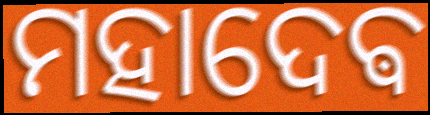
ମହାଦେଵ